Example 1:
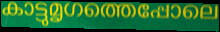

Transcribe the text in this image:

കാട്ടുമൃഗത്തെപ്പോലെ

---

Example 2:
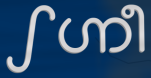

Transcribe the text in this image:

ഽഗ്നീ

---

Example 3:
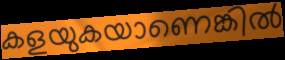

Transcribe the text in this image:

കളയുകയാണെങ്കിൽ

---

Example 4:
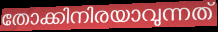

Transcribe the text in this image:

തോക്കിനിരയാവുന്നത്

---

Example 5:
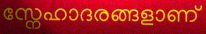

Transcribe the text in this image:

സ്നേഹാദരങ്ങളാണ്